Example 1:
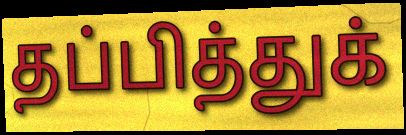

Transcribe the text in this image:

தப்பித்துக்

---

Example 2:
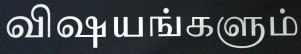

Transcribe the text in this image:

விஷயங்களும்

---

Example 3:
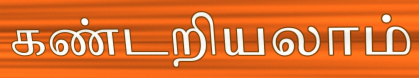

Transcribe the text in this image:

கண்டறியலாம்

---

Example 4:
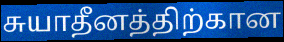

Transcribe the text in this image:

சுயாதீனத்திற்கான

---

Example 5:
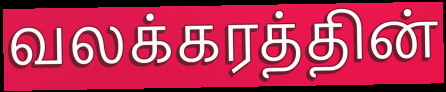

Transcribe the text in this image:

வலக்கரத்தின்